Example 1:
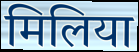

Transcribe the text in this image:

मिलिया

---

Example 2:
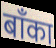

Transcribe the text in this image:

बाँका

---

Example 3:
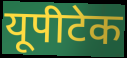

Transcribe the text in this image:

यूपीटेक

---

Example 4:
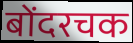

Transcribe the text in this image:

बोंदरचक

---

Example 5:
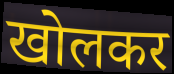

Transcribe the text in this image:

खोलकर